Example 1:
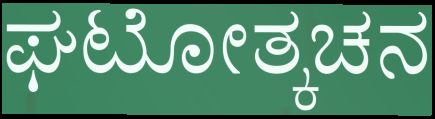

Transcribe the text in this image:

ಘಟೋತ್ಕಚನ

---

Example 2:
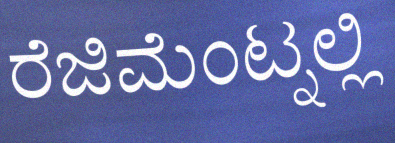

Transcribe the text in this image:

ರೆಜಿಮೆಂಟ್ನಲ್ಲಿ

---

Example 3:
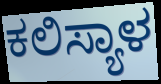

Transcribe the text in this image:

ಕಲಿಸ್ಯಾಳ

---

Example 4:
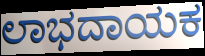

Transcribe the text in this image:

ಲಾಭದಾಯಕ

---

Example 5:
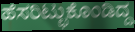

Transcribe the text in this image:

ಹೆಸರಿಟ್ಟುಕೊಂಡಿದ್ದ